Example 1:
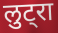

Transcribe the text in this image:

लुट्रा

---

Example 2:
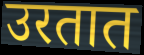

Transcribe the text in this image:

उरतात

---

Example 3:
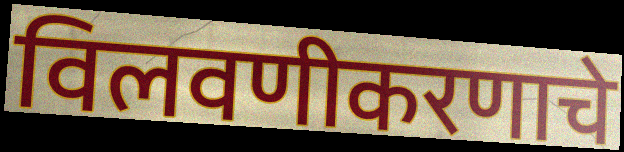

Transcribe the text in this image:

विलवणीकरणाचे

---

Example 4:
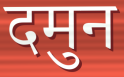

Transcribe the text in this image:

दमुन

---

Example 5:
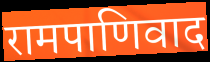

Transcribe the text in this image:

रामपाणिवाद